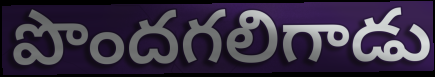
పొందగలిగాడు